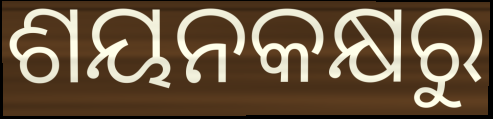
ଶୟନକକ୍ଷରୁ